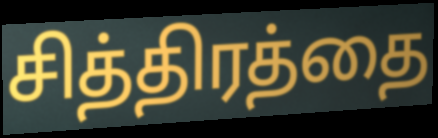
சித்திரத்தை